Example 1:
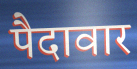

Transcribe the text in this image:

पैदावार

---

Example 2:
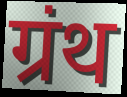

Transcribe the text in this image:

ग्रंथ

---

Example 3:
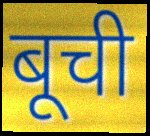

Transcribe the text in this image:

बूची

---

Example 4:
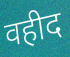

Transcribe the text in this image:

वहीद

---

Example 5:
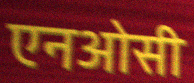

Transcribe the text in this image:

एनओसी